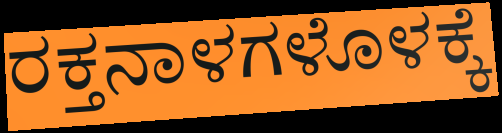
ರಕ್ತನಾಳಗಳೊಳಕ್ಕೆ